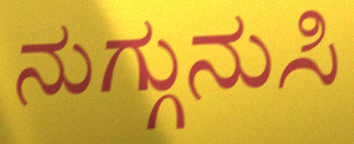
ನುಗ್ಗುನುಸಿ